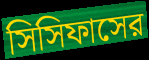
সিসিফাসের